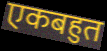
एकबहुत